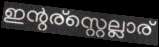
ഇന്റര്സ്റ്റെല്ലാര്